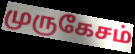
முருகேசம்